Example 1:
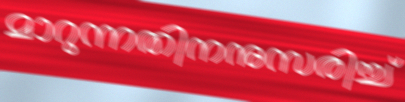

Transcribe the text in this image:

മാറുന്നതിനനുസരിച്ച്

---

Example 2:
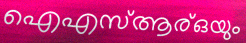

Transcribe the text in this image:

ഐഎസ്ആര്ഒയും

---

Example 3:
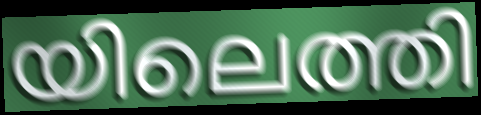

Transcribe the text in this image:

യിലെത്തി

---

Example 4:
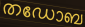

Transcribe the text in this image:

തഡോബ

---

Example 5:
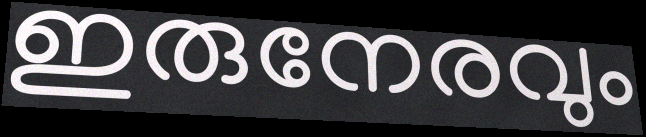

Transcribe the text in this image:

ഇരുനേരവും